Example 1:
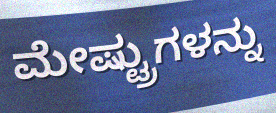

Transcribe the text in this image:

ಮೇಷ್ಟ್ರುಗಳನ್ನು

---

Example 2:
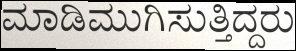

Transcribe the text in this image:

ಮಾಡಿಮುಗಿಸುತ್ತಿದ್ದರು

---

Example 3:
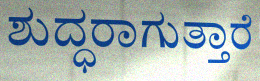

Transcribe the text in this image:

ಶುದ್ಧರಾಗುತ್ತಾರೆ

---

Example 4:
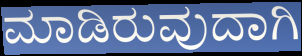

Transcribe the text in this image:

ಮಾಡಿರುವುದಾಗಿ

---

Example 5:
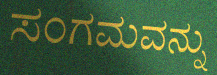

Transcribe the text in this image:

ಸಂಗಮವನ್ನು